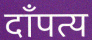
दाँपत्य